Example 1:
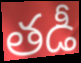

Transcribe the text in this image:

తడీ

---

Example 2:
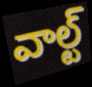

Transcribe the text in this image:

వాల్ట్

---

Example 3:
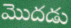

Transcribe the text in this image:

మొదడు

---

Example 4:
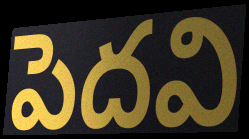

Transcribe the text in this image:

పెదవి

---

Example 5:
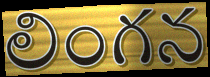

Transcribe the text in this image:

లింగన